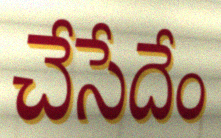
చేసేదేం